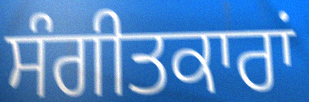
ਸੰਗੀਤਕਾਰਾਂ